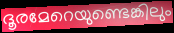
ദൂരമേറെയുണ്ടെങ്കിലും